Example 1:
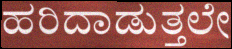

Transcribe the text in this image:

ಹರಿದಾಡುತ್ತಲೇ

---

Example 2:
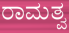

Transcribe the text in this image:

ರಾಮತ್ವ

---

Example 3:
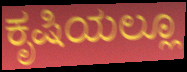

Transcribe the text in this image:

ಕೃಷಿಯಲ್ಲೂ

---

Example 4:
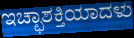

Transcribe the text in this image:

ಇಚ್ಛಾಶಕ್ತಿಯಾದಳು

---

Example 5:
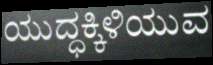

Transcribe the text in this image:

ಯುದ್ಧಕ್ಕಿಳಿಯುವ